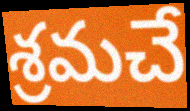
శ్రమచే